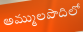
అమ్ములపొదిలో